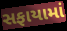
સફાયામાં